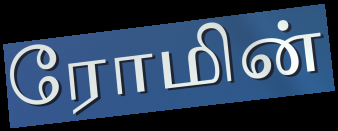
ரோமின்